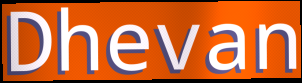
Dhevan